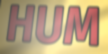
HUM